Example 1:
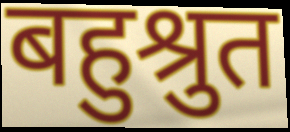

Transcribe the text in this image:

बहुश्रुत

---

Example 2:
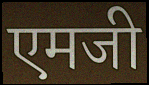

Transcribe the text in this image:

एमजी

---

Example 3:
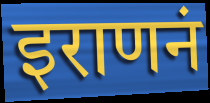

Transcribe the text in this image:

इराणनं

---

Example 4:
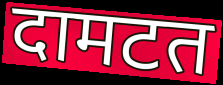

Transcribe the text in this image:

दामटत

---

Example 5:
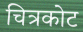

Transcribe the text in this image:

चित्रकोट